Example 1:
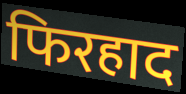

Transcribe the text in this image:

फिरहाद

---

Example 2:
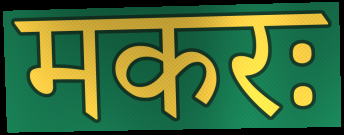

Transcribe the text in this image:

मकरः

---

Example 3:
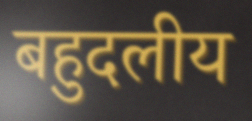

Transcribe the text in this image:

बहुदलीय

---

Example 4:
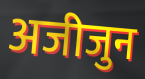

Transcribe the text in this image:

अजीजुन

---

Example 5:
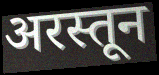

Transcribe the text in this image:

अरस्तून